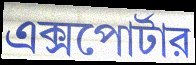
এক্সপোর্টার